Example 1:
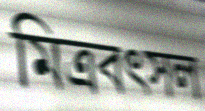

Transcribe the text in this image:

মিত্রবৎসল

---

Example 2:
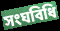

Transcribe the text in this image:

সংঘবিধি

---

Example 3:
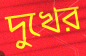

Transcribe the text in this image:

দুখের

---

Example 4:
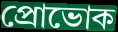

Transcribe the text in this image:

প্রোভোক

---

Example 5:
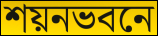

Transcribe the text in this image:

শয়নভবনে